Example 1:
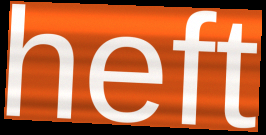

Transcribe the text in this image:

heft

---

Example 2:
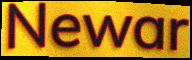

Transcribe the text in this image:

Newar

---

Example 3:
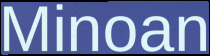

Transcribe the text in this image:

Minoan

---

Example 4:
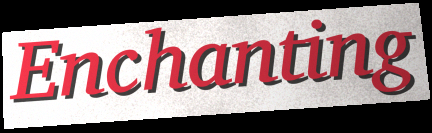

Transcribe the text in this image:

Enchanting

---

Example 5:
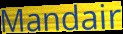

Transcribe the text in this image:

Mandair